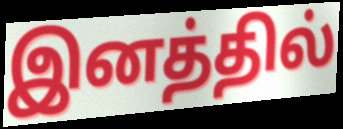
இனத்தில்